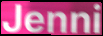
Jenni